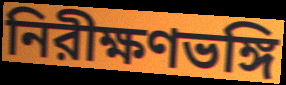
নিরীক্ষণভঙ্গি